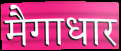
मैगाधार